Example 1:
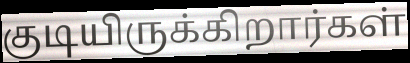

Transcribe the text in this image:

குடியிருக்கிறார்கள்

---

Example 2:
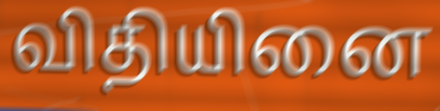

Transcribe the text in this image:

விதியினை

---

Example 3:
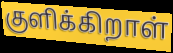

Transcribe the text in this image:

குளிக்கிறாள்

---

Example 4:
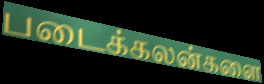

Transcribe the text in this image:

படைக்கலன்களை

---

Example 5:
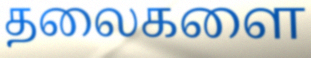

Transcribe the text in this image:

தலைகளை